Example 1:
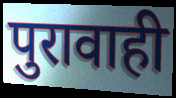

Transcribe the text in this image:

पुरावाही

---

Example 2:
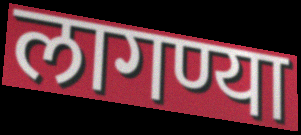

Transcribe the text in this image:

लागण्या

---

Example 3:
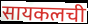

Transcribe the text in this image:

सायकलची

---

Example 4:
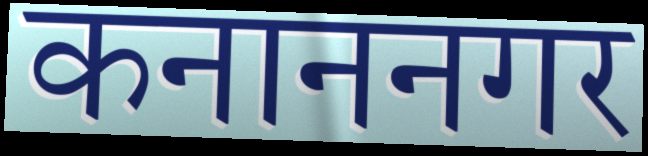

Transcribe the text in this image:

कनाननगर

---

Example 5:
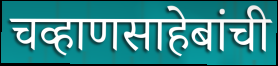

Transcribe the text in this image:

चव्हाणसाहेबांची